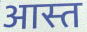
आस्त